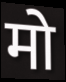
मो